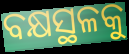
ବକ୍ଷସ୍ଥଳକୁ